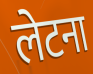
लेटना